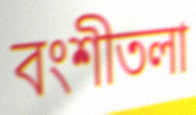
বংশীতলা